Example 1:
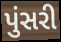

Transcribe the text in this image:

પુંસરી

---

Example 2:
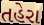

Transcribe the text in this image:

તહેરા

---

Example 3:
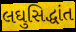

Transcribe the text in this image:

લઘુસિદ્ધાંત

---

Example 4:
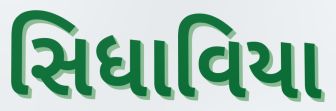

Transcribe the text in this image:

સિધાવિયા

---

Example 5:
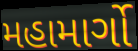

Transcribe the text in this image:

મહામાર્ગો